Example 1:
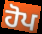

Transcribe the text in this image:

ਹੋਪ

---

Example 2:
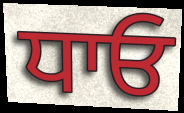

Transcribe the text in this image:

ਧਾਓ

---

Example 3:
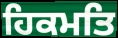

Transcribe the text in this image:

ਹਿਕਮਤਿ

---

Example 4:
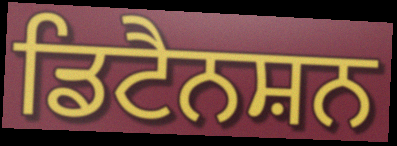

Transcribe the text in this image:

ਡਿਟੈਨਸ਼ਨ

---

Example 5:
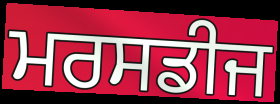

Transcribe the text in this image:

ਮਰਸਡੀਜ